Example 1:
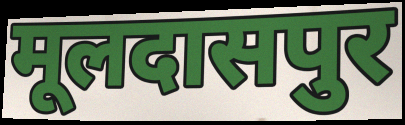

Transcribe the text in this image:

मूलदासपुर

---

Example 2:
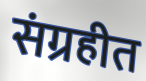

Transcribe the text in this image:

संग्रहीत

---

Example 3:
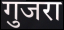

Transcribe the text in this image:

गुजरा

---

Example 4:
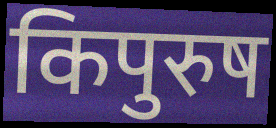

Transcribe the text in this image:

किपुरुष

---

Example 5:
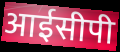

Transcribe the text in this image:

आईसीपी